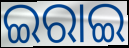
ଇରାଇ